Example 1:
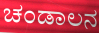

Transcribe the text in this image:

ಚಂಡಾಲನ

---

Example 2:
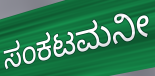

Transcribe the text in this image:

ಸಂಕಟಮನೀ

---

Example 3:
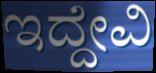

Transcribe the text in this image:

ಇದ್ದೇವಿ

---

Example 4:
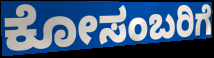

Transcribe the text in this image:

ಕೋಸಂಬರಿಗೆ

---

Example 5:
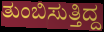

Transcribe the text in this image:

ತುಂಬಿಸುತ್ತಿದ್ದ